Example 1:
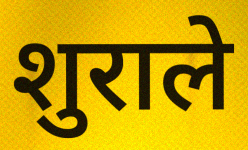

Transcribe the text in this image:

शुराले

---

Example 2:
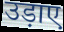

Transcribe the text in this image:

उड़ाए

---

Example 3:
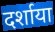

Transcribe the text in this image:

दर्शाया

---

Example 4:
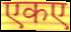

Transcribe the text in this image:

एकए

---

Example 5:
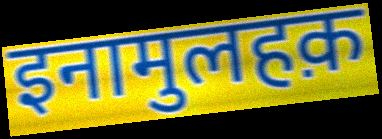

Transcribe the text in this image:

इनामुलहक़